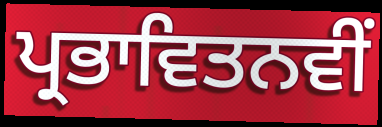
ਪ੍ਰਭਾਵਿਤਨਵੀਂ